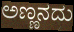
ಅಣ್ಣನದು